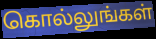
கொல்லுங்கள்